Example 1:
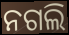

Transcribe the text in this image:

ନଗଲି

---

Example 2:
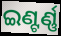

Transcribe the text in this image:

ଇଣ୍ଟର୍ଣ୍ଣ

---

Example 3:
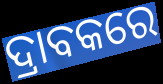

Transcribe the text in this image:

ଦ୍ରାବକରେ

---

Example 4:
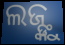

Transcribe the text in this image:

ଲଜ୍ଙ୍କୁ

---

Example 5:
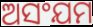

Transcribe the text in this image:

ଅସଂଯମ